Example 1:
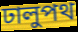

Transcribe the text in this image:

ঢালুপথ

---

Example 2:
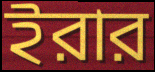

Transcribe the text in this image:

ইরার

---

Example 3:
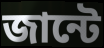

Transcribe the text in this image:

জান্টে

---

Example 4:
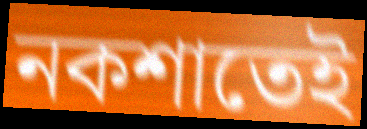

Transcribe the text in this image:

নকশাতেই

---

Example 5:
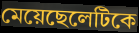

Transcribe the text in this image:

মেয়েছেলেটিকে